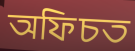
অফিচত